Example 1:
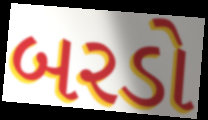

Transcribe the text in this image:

બરડો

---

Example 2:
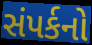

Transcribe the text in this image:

સંપર્કનો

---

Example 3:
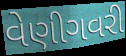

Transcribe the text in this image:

વેણીગવરી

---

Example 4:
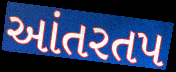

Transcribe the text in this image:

આંતરતપ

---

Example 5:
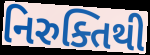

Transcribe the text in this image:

નિરુક્તિથી